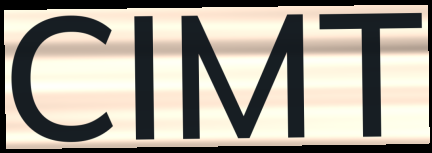
CIMT